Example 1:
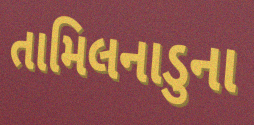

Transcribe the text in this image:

તામિલનાડુના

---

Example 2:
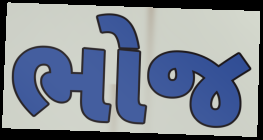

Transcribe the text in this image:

ભોજ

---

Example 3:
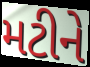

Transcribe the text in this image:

મટીને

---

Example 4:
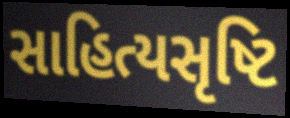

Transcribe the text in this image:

સાહિત્યસૃષ્ટિ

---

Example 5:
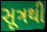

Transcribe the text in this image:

સૂત્રથી